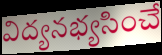
విద్యనభ్యసించే